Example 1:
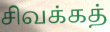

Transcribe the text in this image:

சிவக்கத்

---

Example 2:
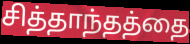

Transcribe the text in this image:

சித்தாந்தத்தை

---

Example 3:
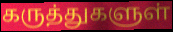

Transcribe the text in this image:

கருத்துகளுள்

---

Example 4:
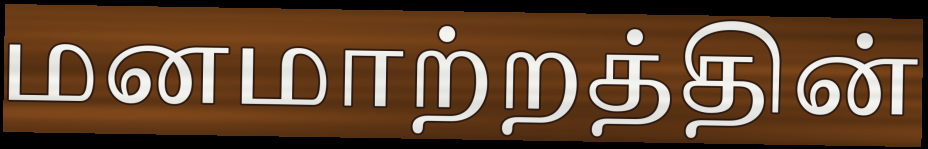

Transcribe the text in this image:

மனமாற்றத்தின்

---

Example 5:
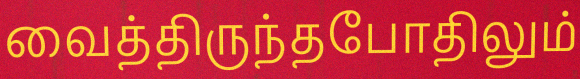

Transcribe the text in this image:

வைத்திருந்தபோதிலும்